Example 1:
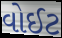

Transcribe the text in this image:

વોઈટ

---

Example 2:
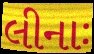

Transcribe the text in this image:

લીનાઃ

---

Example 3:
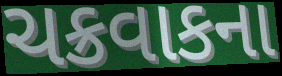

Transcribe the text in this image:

ચક્રવાકના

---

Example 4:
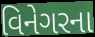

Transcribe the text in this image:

વિનેગરના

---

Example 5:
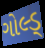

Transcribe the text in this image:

ગોલ્ડ્